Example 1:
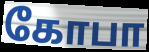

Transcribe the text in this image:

கோபா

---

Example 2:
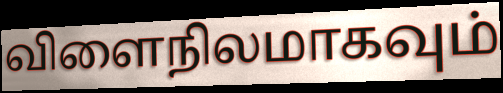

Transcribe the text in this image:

விளைநிலமாகவும்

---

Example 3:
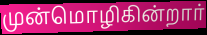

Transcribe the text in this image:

முன்மொழிகின்றார்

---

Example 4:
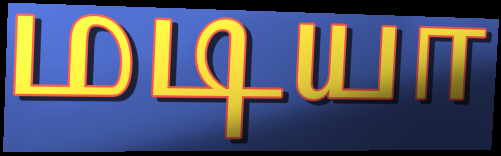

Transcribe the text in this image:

மடியா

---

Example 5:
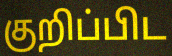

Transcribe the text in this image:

குறிப்பிட